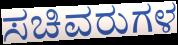
ಸಚಿವರುಗಳ